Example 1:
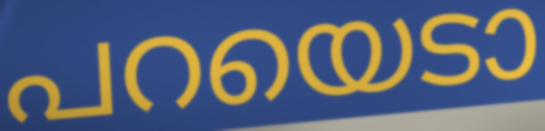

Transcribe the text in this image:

പറയെടാ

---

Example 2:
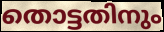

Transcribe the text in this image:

തൊട്ടതിനും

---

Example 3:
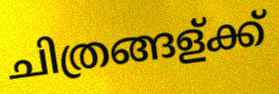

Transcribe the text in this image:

ചിത്രങ്ങള്ക്ക്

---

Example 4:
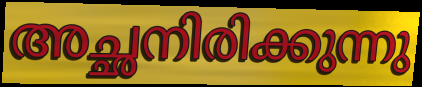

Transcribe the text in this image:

അച്ഛനിരിക്കുന്നു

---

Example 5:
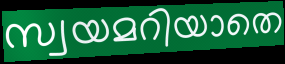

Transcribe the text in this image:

സ്വയമറിയാതെ